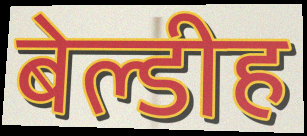
बेल्डीह